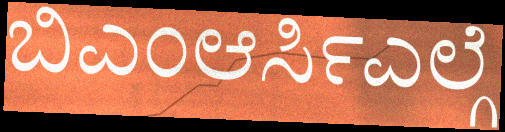
ಬಿಎಂಆರ್ಸಿಎಲ್ಗೆ